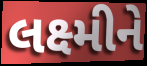
લક્ષ્મીને